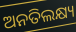
ଅନତିଲକ୍ଷ୍ୟ